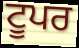
ਟੂਪਰ